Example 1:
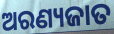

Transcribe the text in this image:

ଅରଣ୍ୟଜାତ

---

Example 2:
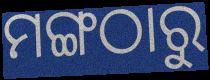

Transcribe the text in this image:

ମଙ୍ଗଠାରୁ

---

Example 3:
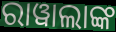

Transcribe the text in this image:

ରାୱାଲାଙ୍କ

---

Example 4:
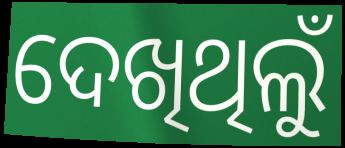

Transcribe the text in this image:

ଦେଖିଥିଲୁଁ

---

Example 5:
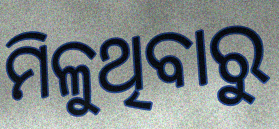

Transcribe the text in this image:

ମିଳୁଥିବାରୁ